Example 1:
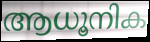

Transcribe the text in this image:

ആധൂനിക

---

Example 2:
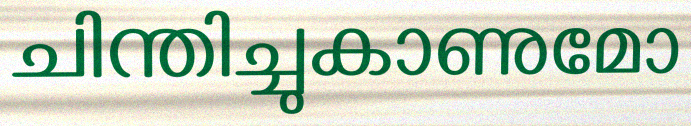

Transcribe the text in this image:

ചിന്തിച്ചുകാണുമോ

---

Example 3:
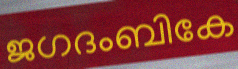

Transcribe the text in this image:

ജഗദംബികേ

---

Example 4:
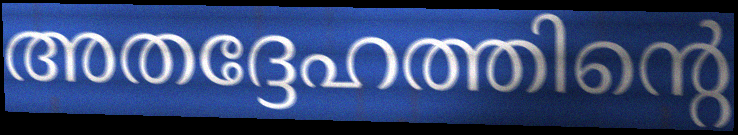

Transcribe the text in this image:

അതദ്ദേഹത്തിന്റെ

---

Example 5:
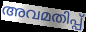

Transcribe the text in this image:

അവമതിപ്പ്